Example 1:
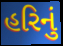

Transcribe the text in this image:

હરિનું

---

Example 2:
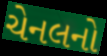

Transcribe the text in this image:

ચેનલનો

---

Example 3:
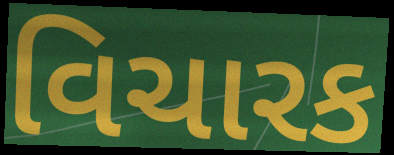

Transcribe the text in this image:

વિચારક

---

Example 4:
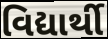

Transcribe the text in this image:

વિદ્યાર્થી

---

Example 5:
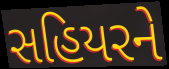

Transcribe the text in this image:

સહિયરને